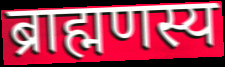
ब्राह्मणस्य